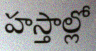
హస్తాల్లో